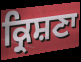
ਕ੍ਰਿਸ਼ਣਾ